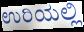
ಉರಿಯಲ್ಲಿ